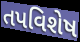
તપવિશેષ